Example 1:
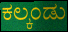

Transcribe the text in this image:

ಕಲ್ಕಂಡು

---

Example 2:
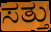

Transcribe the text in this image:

ಸತ್ತು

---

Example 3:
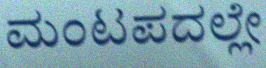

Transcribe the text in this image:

ಮಂಟಪದಲ್ಲೇ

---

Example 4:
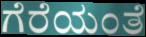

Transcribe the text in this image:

ಗೆರೆಯಂತೆ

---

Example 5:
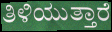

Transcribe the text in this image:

ತಿಳಿಯುತ್ತಾರೆ